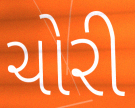
ચોરી